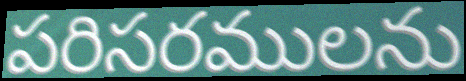
పరిసరములను